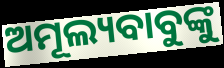
ଅମୂଲ୍ୟବାବୁଙ୍କୁ